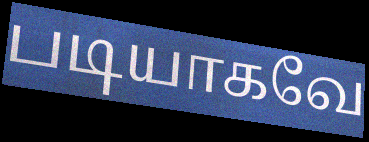
படியாகவே